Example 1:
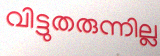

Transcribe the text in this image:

വിട്ടുതരുന്നില്ല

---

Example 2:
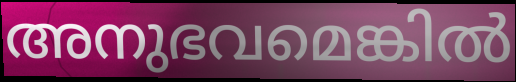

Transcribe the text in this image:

അനുഭവമെങ്കിൽ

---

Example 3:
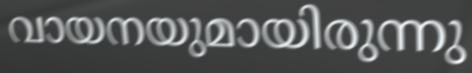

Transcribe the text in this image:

വായനയുമായിരുന്നു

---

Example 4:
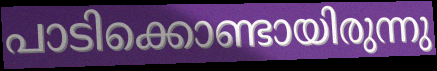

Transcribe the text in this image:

പാടിക്കൊണ്ടായിരുന്നു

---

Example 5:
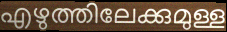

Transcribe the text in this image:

എഴുത്തിലേക്കുമുള്ള